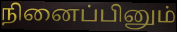
நினைப்பினும்